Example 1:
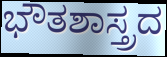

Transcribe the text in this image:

ಭೌತಶಾಸ್ತ್ರದ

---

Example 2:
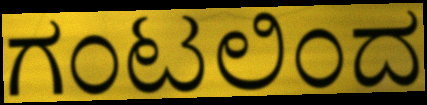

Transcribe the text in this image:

ಗಂಟಲಿಂದ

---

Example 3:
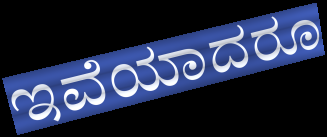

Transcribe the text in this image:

ಇವೆಯಾದರೂ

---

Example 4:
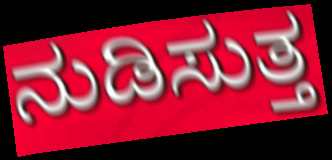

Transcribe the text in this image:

ನುಡಿಸುತ್ತ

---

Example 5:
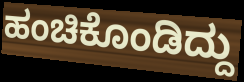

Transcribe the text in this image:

ಹಂಚಿಕೊಂಡಿದ್ದು